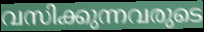
വസിക്കുന്നവരുടെ